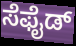
ಸೆಫೈಡ್